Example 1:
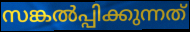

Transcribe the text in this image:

സങ്കൽപ്പിക്കുന്നത്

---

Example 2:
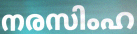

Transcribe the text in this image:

നരസിംഹ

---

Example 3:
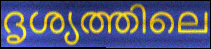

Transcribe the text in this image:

ദൃശ്യത്തിലെ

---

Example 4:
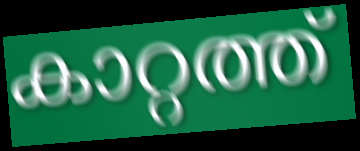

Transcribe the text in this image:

കാറ്റത്ത്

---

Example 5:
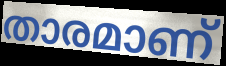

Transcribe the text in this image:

താരമാണ്